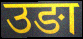
उङा